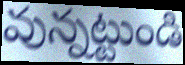
వున్నట్టుండి